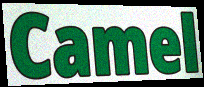
Camel